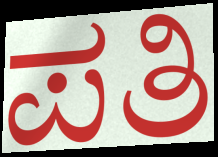
ಪತಿ